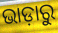
ଭାଡ଼ାରୁ